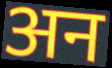
अन